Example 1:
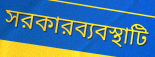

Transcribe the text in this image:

সরকারব্যবস্থাটি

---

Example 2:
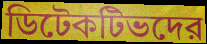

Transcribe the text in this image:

ডিটেকটিভদের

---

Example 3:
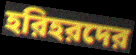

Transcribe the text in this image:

হরিহরদের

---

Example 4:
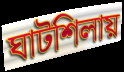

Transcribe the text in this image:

ঘাটশিলায়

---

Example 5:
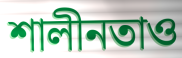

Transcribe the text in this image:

শালীনতাও